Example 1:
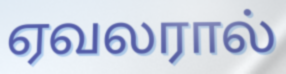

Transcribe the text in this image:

ஏவலரால்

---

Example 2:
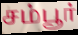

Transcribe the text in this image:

சம்பூர்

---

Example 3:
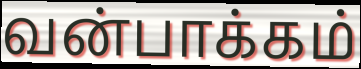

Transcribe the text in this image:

வன்பாக்கம்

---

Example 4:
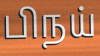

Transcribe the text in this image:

பிநய்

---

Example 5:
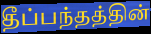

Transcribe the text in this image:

தீப்பந்தத்தின்